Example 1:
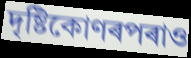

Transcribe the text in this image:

দৃষ্টিকোণৰপৰাও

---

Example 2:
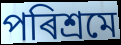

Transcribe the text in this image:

পৰিশ্ৰমে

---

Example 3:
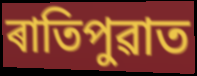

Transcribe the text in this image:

ৰাতিপুৱাত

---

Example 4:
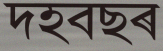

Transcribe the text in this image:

দহবছৰ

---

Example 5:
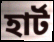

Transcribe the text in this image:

হাৰ্ট